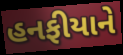
હનફીયાને